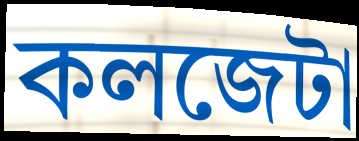
কলজেটা